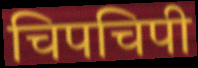
चिपचिपी